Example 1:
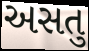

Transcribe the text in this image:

અસતુ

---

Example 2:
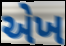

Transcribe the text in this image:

એખ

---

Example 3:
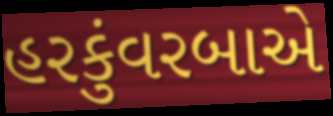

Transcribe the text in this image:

હરકુંવરબાએ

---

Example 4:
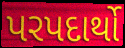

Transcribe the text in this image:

પરપદાર્થો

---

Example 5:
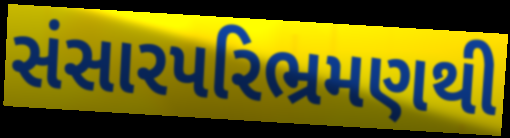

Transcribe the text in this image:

સંસારપરિભ્રમણથી